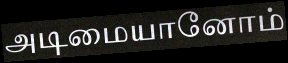
அடிமையானோம்